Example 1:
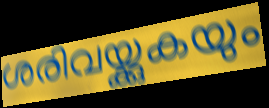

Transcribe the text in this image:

ശരിവയ്ക്കുകയും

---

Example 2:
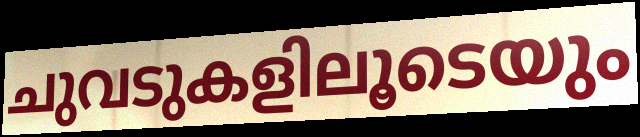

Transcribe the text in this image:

ചുവടുകളിലൂടെയും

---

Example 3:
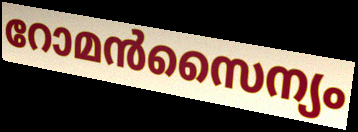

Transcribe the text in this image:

റോമൻസൈന്യം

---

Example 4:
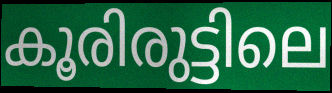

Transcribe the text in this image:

കൂരിരുട്ടിലെ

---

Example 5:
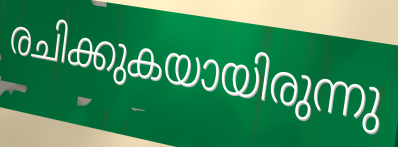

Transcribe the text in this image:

രചിക്കുകയായിരുന്നു